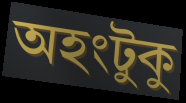
অহংটুকু